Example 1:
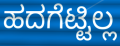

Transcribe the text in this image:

ಹದಗೆಟ್ಟಿಲ್ಲ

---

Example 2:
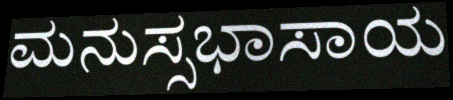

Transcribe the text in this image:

ಮನುಸ್ಸಭಾಸಾಯ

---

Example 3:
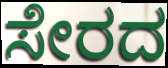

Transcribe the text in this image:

ಸೇರದ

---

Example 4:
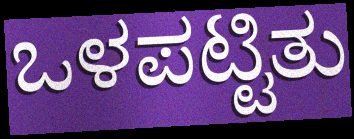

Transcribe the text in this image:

ಒಳಪಟ್ಟಿತು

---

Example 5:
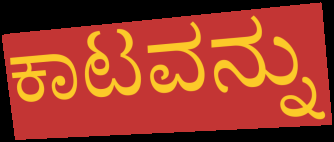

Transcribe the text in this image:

ಕಾಟವನ್ನು